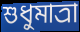
শুধুমাত্রা